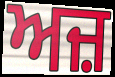
ਅਜ਼